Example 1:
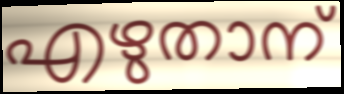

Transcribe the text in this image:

എഴുതാന്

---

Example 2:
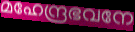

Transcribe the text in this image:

മഹേന്ദ്രഭവനേ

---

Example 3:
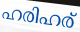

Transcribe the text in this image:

ഹരിഹര്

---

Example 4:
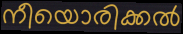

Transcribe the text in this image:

നീയൊരിക്കൽ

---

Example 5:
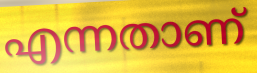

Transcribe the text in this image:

എന്നതാണ്